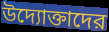
উদ্যোক্তাদের